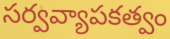
సర్వవ్యాపకత్వం